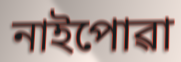
নাইপোৱা